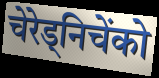
चेरेड्निचेंको